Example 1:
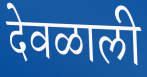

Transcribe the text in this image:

देवळाली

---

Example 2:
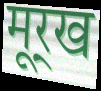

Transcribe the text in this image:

मूर्ख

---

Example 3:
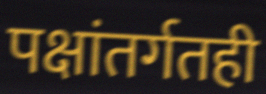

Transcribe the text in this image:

पक्षांतर्गतही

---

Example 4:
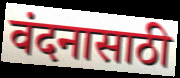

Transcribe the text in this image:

वंदनासाठी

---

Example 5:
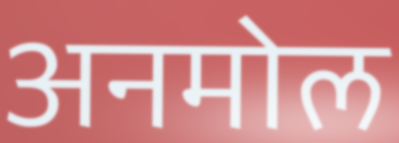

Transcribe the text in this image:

अनमोल